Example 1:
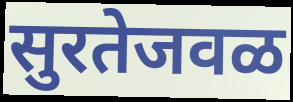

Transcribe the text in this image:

सुरतेजवळ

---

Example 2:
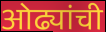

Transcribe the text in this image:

ओढ्यांची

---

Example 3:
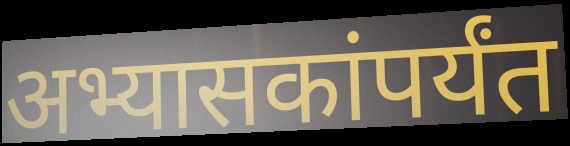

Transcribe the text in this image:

अभ्यासकांपर्यंत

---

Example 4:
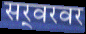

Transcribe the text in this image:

सर्वरवर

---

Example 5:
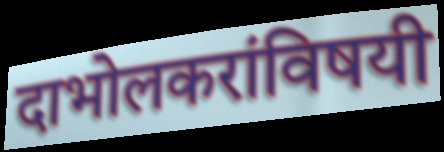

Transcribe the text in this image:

दाभोलकरांविषयी